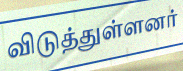
விடுத்துள்ளனர்